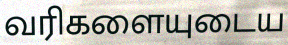
வரிகளையுடைய